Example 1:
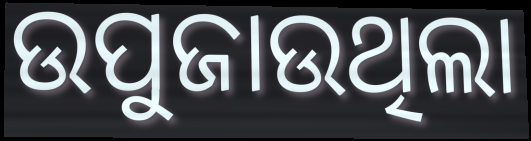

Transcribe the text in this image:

ଉପୁଜାଉଥିଲା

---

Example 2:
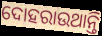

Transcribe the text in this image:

ଦୋହରାଉଥାନ୍ତି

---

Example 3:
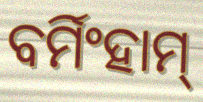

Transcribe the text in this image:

ବର୍ମିଂହାମ୍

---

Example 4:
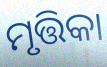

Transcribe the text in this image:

ମୃତ୍ତିକା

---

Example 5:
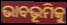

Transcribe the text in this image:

ଭାବଭୂମିକୁ